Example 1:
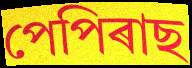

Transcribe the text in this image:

পেপিৰাছ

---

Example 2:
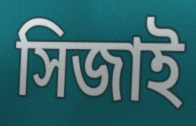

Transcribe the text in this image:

সিজাই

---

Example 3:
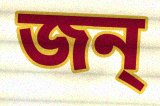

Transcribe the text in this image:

জন্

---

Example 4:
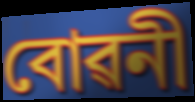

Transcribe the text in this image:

বোৱনী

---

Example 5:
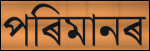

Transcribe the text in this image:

পৰিমানৰ